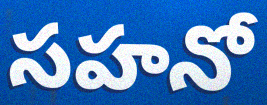
సహనో